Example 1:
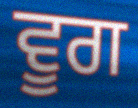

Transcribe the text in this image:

ਵੂਗ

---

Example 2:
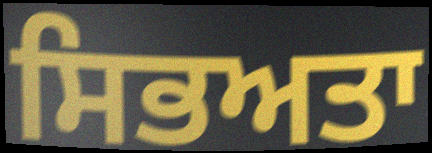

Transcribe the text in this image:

ਸਿਭਅਤਾ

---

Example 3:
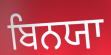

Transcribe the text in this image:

ਬਿਨਯਾ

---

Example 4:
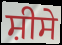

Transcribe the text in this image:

ਸ਼ੀਸੇ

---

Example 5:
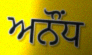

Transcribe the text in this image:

ਅਨੌਂਧ